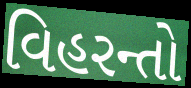
વિહરન્તો